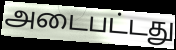
அடைபட்டது